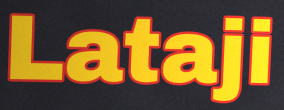
Lataji